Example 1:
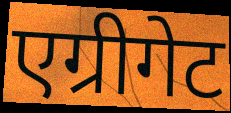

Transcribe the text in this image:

एग्रीगेट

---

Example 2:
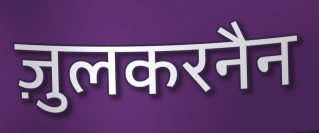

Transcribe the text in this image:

ज़ुलकरनैन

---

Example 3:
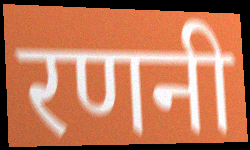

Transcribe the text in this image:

रणनी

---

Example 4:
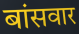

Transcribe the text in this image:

बांसवार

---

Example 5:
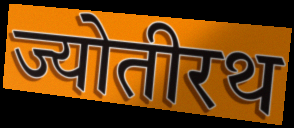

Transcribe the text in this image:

ज्योतीरथ